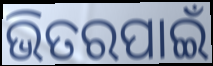
ଭିତରପାଇଁ